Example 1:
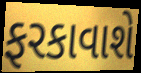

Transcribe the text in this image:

ફરકાવાશે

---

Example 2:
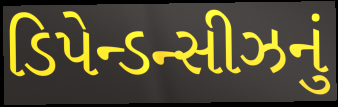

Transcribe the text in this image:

ડિપેન્ડન્સીઝનું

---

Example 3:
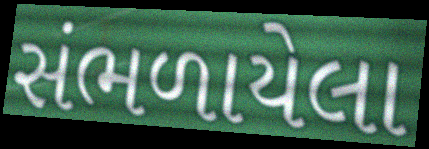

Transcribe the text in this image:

સંભળાયેલા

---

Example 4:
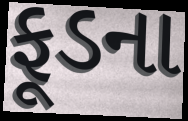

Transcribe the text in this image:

ફૂડના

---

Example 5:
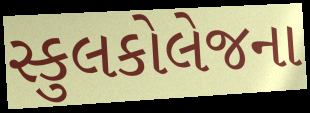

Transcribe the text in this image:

સ્કુલકોલેજના